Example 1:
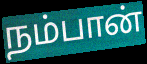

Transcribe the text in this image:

நம்பான்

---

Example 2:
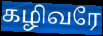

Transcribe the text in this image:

கழிவரே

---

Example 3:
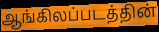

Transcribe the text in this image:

ஆங்கிலப்படத்தின்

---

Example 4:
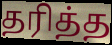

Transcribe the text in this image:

தரித்த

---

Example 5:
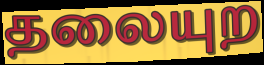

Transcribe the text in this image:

தலையுற